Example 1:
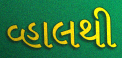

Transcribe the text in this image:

વ્હાલથી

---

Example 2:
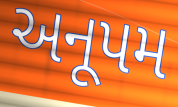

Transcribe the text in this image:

અનૂપમ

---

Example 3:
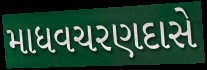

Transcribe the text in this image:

માધવચરણદાસે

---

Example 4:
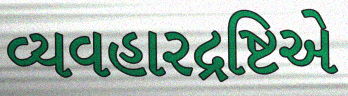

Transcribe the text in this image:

વ્યવહારદ્રષ્ટિએ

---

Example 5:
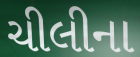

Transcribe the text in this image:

ચીલીના